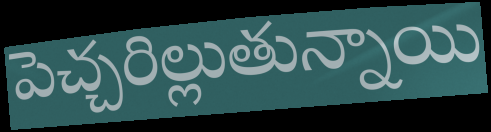
పెచ్చరిల్లుతున్నాయి